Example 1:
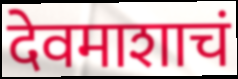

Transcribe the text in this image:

देवमाशाचं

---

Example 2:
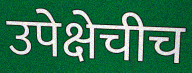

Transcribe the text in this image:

उपेक्षेचीच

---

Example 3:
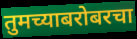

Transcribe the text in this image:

तुमच्याबरोबरचा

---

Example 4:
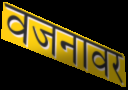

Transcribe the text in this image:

वजनावर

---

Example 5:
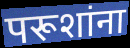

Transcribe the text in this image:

परूशांना